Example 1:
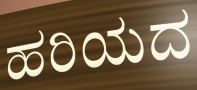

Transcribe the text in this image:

ಹರಿಯದ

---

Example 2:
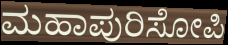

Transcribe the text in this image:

ಮಹಾಪುರಿಸೋಪಿ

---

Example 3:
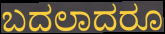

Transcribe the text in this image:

ಬದಲಾದರೂ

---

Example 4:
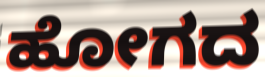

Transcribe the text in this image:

ಹೋಗದ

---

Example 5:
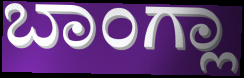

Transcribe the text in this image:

ಬಾಂಗ್ಲಾ